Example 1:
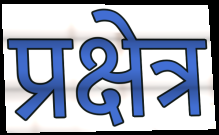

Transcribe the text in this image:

प्रक्षेत्र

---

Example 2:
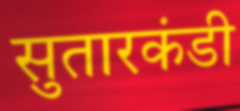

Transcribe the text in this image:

सुतारकंडी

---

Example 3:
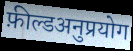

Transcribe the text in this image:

फ़ील्डअनुप्रयोग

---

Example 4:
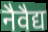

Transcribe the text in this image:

नैवैद्य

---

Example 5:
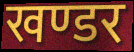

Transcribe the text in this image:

खण्डर